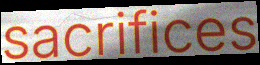
sacrifices